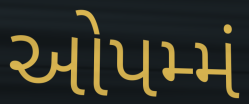
ઓપમ્મં